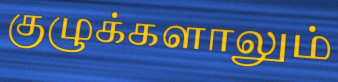
குழுக்களாலும்